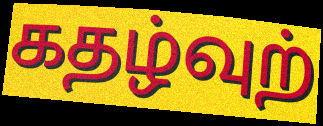
கதழ்வுற்